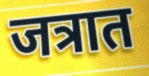
जत्रात